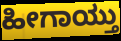
ಹೀಗಾಯ್ತು